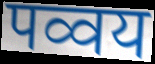
पव्वय